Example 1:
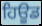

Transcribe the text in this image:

ਹਿਊਡ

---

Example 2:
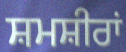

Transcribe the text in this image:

ਸ਼ਮਸ਼ੀਰਾਂ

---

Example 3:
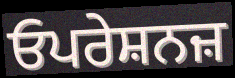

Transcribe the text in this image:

ਓਪਰੇਸ਼ਨਜ਼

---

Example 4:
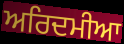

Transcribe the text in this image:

ਅਰਿਦਮੀਆ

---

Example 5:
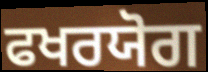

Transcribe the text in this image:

ਫਖਰਯੋਗ